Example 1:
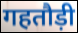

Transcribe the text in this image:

गहतौड़ी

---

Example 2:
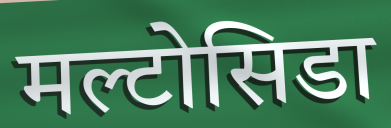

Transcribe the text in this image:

मल्टोसिडा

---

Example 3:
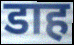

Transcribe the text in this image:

डाह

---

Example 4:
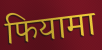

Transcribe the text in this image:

फियामा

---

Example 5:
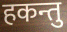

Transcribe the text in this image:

हकन्तु